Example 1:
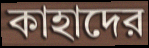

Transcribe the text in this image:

কাহাদের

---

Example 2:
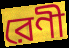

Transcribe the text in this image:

রেণী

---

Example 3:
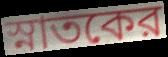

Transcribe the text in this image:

স্নাতকের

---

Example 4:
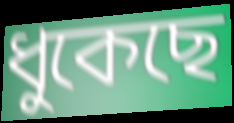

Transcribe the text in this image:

ধুকেছে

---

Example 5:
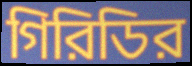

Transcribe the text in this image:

গিরিডির